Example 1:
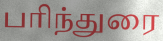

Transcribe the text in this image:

பரிந்துரை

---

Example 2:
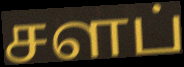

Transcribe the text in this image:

சளப்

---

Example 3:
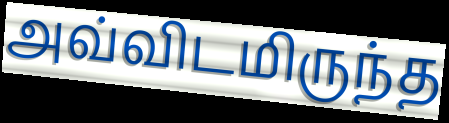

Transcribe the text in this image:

அவ்விடமிருந்த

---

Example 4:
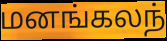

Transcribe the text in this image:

மனங்கலந்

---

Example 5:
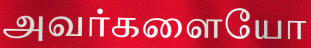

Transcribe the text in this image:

அவர்களையோ